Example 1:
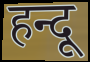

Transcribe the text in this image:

हन्दू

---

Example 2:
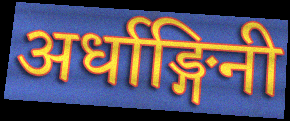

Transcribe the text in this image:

अर्धाङ्गिनी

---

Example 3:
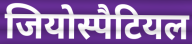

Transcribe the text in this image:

जियोस्पैटियल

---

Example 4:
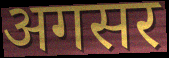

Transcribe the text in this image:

अगसर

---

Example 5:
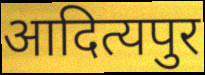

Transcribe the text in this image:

आदित्यपुर